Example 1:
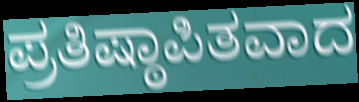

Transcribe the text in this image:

ಪ್ರತಿಷ್ಠಾಪಿತವಾದ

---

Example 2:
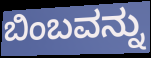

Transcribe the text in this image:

ಬಿಂಬವನ್ನು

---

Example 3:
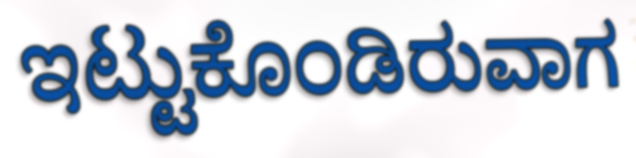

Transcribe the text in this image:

ಇಟ್ಟುಕೊಂಡಿರುವಾಗ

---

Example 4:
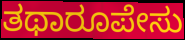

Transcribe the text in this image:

ತಥಾರೂಪೇಸು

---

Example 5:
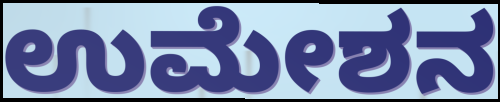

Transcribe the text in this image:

ಉಮೇಶನ